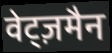
वेट्ज़मैन